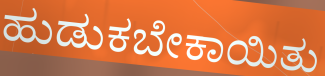
ಹುಡುಕಬೇಕಾಯಿತು